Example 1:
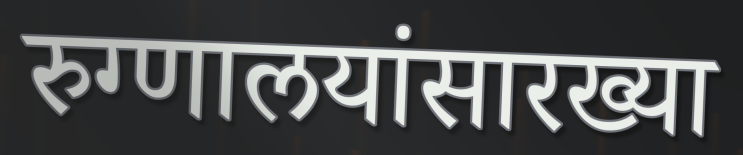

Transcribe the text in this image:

रुग्णालयांसारख्या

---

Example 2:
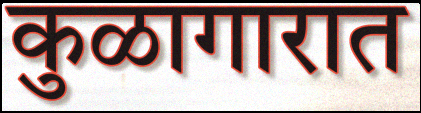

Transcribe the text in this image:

कुळागारात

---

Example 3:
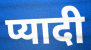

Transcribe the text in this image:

प्यादी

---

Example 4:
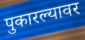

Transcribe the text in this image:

पुकारल्यावर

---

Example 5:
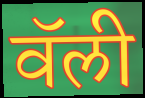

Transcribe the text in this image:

वॅली